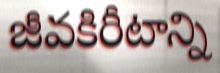
జీవకిరీటాన్ని